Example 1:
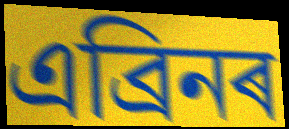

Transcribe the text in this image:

এব্ৰিনৰ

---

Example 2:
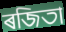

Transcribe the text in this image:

ৰজিতা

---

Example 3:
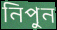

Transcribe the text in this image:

নিপুন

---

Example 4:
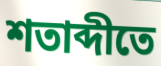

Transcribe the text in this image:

শতাব্দীতে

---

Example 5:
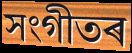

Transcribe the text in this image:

সংগীতৰ